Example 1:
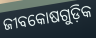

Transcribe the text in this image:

ଜୀବକୋଷଗୁଡ଼ିକ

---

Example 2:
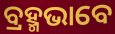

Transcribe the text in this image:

ବ୍ରହ୍ମଭାବେ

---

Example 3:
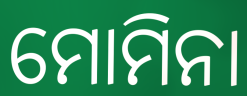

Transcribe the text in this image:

ମୋମିନା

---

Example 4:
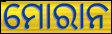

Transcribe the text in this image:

ମୋରାନ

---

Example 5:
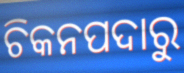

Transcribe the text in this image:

ଚିକନପଦାରୁ